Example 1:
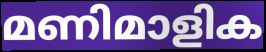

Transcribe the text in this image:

മണിമാളിക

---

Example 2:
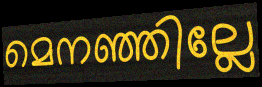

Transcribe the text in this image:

മെനഞ്ഞില്ലേ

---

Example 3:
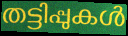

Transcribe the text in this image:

തട്ടിപ്പുകൾ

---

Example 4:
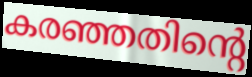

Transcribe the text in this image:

കരഞ്ഞതിന്റെ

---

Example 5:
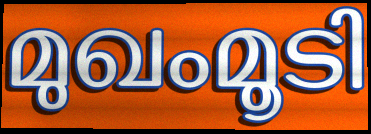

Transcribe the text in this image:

മുഖംമൂടി